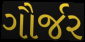
ગૌર્જર